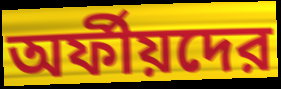
অর্ফীয়দের